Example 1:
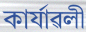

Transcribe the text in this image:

কাৰ্যাৱলী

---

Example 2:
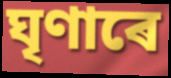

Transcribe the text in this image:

ঘৃণাৰে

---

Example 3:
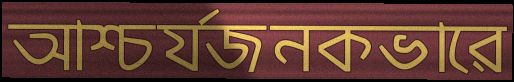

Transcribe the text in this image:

আশ্চৰ্যজনকভাৱে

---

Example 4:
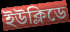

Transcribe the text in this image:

ইউক্লিডে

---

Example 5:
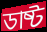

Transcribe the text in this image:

ডাষ্ট